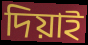
দিয়াই